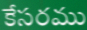
కేసరము